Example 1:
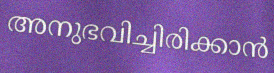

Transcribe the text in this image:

അനുഭവിച്ചിരിക്കാൻ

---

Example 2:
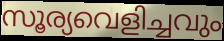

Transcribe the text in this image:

സൂര്യവെളിച്ചവും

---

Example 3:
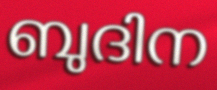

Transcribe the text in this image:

ബുദിന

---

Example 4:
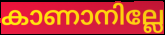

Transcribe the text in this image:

കാണാനില്ലേ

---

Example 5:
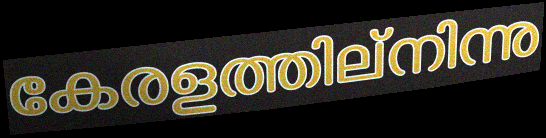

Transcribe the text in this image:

കേരളത്തില്നിന്നു